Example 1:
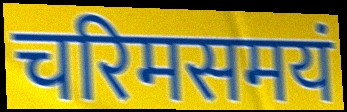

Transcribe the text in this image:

चरिमसमयं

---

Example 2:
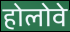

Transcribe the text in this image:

होलोवे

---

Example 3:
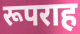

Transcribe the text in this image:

रूपराह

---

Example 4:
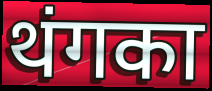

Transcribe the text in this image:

थंगका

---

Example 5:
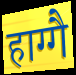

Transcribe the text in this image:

हाग्गै